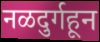
नळदुर्गहून